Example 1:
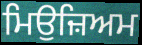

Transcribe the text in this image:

ਮਿਉਜ਼ਿਅਮ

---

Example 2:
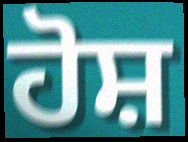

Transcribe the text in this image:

ਹੋਸ਼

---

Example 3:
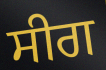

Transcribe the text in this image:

ਸੀਗ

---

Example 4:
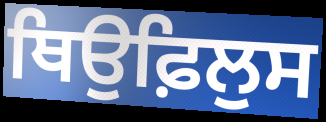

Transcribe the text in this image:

ਥਿਉਫ਼ਿਲੁਸ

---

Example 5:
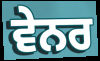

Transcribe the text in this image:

ਵੇਨਰ